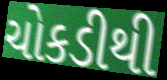
ચોકડીથી